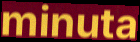
minuta